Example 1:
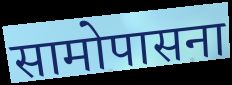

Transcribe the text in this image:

सामोपासना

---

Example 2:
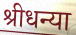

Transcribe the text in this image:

श्रीधन्या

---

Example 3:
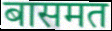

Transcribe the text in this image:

बासमत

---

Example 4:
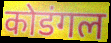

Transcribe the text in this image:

कोडंगल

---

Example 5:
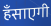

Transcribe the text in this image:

हँसाएगी